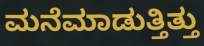
ಮನೆಮಾಡುತ್ತಿತ್ತು